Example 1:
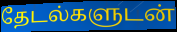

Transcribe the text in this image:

தேடல்களுடன்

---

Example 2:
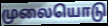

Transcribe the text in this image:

முலையொடு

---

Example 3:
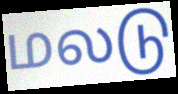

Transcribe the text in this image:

மலடு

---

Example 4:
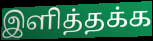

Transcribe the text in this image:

இளித்தக்க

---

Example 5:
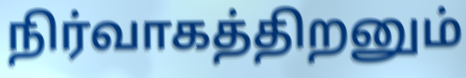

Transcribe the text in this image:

நிர்வாகத்திறனும்